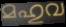
മഹുവ